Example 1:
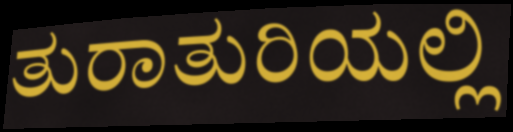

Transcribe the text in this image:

ತುರಾತುರಿಯಲ್ಲಿ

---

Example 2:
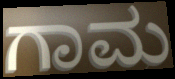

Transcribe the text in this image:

ಗಾಮ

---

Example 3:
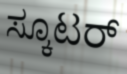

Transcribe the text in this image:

ಸ್ಕೂಟರ್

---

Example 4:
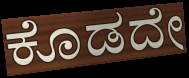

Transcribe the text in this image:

ಕೊಡದೇ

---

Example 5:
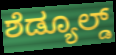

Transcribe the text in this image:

ಶೆಡ್ಯೂಲ್ಡ್